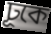
ঢূকে